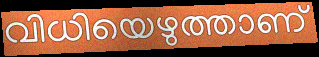
വിധിയെഴുത്താണ്